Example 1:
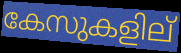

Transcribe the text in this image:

കേസുകളില്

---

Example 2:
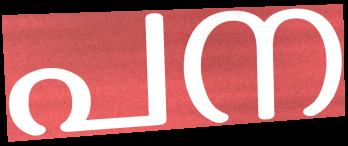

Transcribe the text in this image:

പന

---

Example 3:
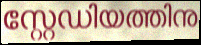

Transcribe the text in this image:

സ്റ്റേഡിയത്തിനു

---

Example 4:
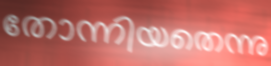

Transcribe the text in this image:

തോന്നിയതെന്നു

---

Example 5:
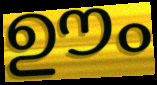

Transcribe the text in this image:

ഊം